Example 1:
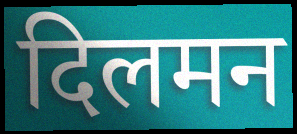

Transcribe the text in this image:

दिलमन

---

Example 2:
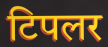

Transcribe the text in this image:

टिपलर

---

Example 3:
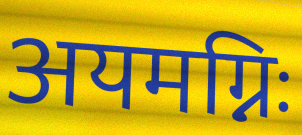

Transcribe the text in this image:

अयमग्निः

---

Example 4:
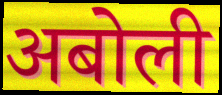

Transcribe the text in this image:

अबोली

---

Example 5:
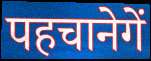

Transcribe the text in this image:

पहचानेगें